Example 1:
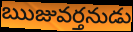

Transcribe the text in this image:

ఋజువర్తనుడు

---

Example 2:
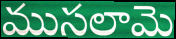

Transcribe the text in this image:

ముసలామె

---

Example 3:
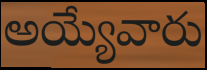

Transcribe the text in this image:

అయ్యేవారు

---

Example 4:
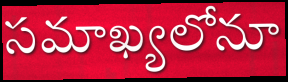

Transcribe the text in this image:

సమాఖ్యలోనూ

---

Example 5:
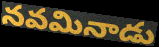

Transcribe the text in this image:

నవమినాడు